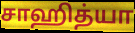
சாஹித்யா